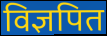
विज्ञपित